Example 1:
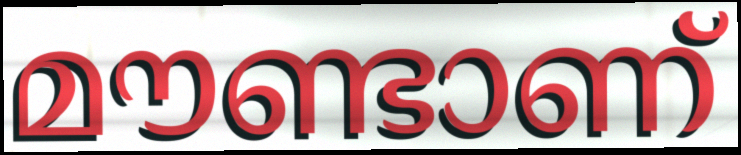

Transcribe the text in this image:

മൗണ്ടാണ്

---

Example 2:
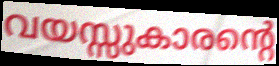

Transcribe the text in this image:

വയസ്സുകാരന്റെ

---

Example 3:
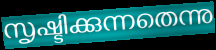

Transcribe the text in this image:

സൃഷ്ടിക്കുന്നതെന്നു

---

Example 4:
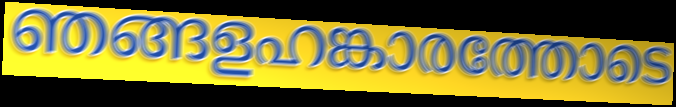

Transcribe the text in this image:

ഞങ്ങളഹങ്കാരത്തോടെ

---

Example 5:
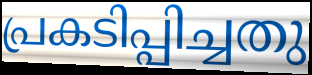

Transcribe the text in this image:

പ്രകടിപ്പിച്ചതു